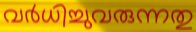
വർധിച്ചുവരുന്നതു